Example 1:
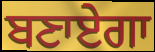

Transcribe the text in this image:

ਬਣਾਏਗਾ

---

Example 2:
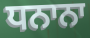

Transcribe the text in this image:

ਧਨਾਨਾ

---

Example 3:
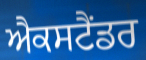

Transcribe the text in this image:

ਐਕਸਟੈਂਡਰ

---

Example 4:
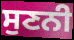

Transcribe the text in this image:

ਸੁਣਨੀ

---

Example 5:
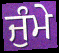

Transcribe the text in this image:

ਜੁੰਮੇ